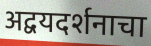
अद्वयदर्शनाचा